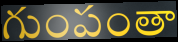
గుంపంతా